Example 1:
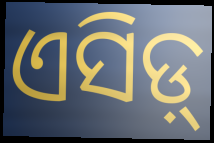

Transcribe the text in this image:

ଏସିଡ଼୍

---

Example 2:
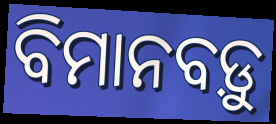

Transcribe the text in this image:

ବିମାନବଡ଼ୁ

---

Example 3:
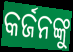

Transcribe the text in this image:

କର୍ଜନଙ୍କୁ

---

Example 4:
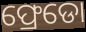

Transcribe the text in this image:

ଫ୍ରେଡୋ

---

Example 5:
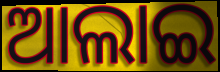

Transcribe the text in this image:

ଆଲାଇ